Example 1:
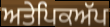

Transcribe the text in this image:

ਅਤੇਪਿਕਅੱਪ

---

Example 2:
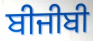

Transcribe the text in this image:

ਬੀਜੀਬੀ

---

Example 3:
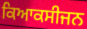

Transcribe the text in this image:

ਕਿਆਕਸੀਜਨ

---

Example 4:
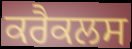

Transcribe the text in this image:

ਕਰੈਕਲਸ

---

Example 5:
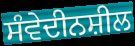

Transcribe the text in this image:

ਸੰਵੇਦੀਨਸ਼ੀਲ